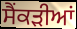
ਸੈਂਕੜੀਆਂ